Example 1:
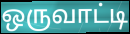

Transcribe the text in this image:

ஒருவாட்டி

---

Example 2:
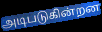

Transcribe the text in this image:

அடிபடுகின்றன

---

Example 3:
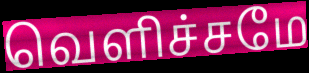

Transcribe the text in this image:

வெளிச்சமே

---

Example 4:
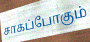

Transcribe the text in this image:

சாகப்போகும்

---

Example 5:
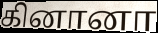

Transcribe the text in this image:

கினானா